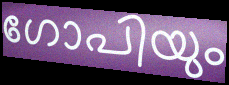
ഗോപിയും